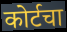
कोर्टचा